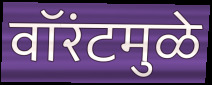
वॉरंटमुळे